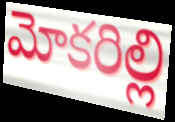
మోకరిల్లి